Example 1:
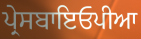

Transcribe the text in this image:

ਪ੍ਰੇਸਬਾਇਓਪੀਆ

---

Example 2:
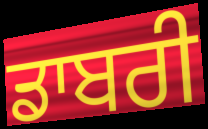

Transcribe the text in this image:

ਡਾਬਰੀ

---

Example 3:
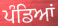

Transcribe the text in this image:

ਪੰਡਿਆਂ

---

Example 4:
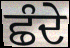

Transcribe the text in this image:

ਛੰਦੇ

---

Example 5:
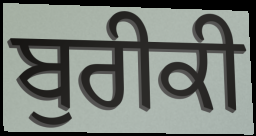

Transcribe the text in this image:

ਬੁਰੀਕੀ